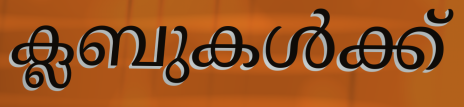
ക്ലബുകൾക്ക്